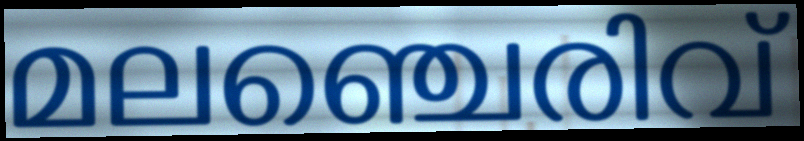
മലഞ്ചെരിവ്